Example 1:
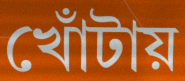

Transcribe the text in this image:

খোঁটায়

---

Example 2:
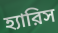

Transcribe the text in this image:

হ্যারিস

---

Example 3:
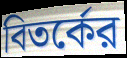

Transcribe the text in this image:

বিতর্কের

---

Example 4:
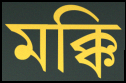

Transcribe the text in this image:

মক্কি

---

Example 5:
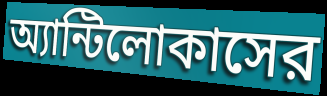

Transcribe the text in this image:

অ্যান্টিলোকাসের